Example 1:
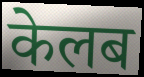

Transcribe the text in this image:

केलब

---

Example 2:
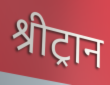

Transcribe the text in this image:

श्रीट्रान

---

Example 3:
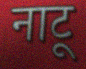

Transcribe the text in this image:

नाटू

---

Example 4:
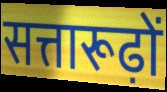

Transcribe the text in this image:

सत्तारूढ़ों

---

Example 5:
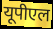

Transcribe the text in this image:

यूपीएल